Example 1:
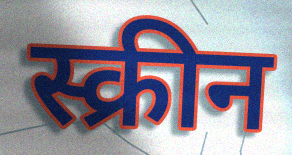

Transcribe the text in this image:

स्क्रीन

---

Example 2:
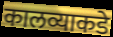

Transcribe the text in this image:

कालव्याकडे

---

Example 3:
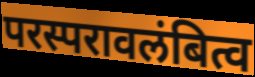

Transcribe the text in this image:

परस्परावलंबित्व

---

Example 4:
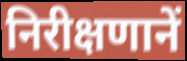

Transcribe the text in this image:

निरीक्षणानें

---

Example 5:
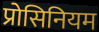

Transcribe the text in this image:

प्रोसिनियम